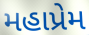
મહાપ્રેમ